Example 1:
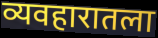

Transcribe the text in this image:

व्यवहारातला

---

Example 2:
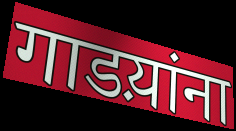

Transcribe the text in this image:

गाडय़ांना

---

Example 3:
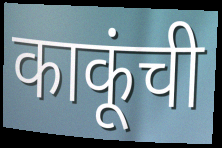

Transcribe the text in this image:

काकूंची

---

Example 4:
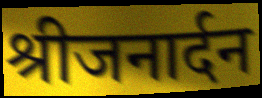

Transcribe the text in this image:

श्रीजनार्दन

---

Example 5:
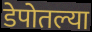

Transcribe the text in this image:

डेपोतल्या